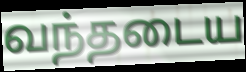
வந்தடைய